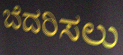
ಬೆದರಿಸಲು